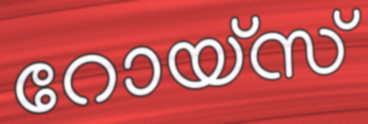
റോയ്സ്